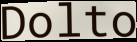
Dolto